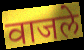
वाजले